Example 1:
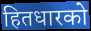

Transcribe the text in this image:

हितधारको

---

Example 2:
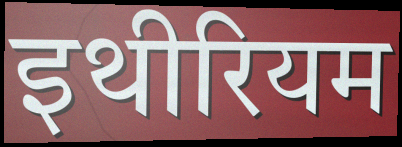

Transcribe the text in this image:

इथीरियम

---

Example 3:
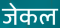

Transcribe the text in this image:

जेकल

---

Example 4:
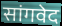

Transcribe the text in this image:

सांगवेद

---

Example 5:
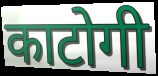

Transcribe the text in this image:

काटोगी